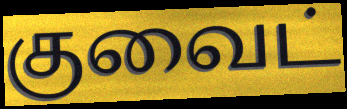
குவைட்